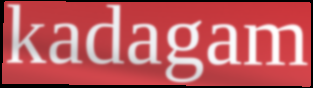
kadagam